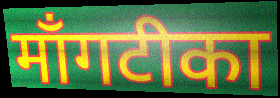
माँगटीका